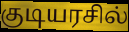
குடியரசில்